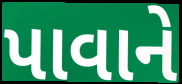
પાવાને